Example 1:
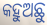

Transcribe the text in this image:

କହୁଅଛୁ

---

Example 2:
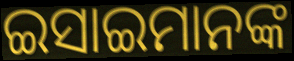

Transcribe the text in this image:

ଇସାଇମାନଙ୍କ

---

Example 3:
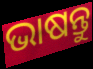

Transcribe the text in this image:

ଭାଷନ୍ତୁ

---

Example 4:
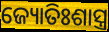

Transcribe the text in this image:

ଜ୍ୟୋତିଃଶାସ୍ତ୍ର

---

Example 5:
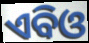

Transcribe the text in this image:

ଏବିଓ